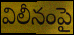
విలీనంపై